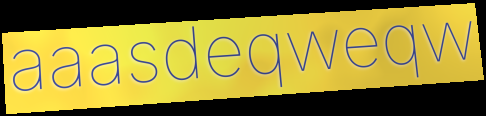
aaasdeqweqw